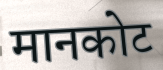
मानकोट